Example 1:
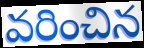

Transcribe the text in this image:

వరించిన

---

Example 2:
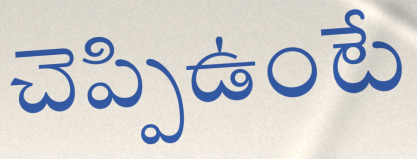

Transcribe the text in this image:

చెప్పిఉంటే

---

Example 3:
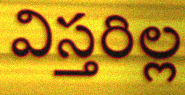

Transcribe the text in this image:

విస్తరిల్ల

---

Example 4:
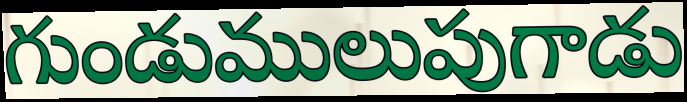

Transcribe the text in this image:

గుండుములుపుగాడు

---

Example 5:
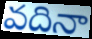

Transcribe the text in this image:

వదినా